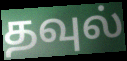
தவுல்